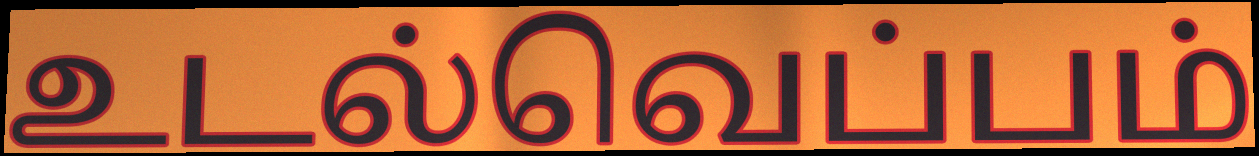
உடல்வெப்பம்